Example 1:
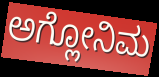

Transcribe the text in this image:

ಅಗ್ಲೋನಿಮ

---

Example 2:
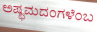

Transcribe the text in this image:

ಅಷ್ಟಮದಂಗಳೆಂಬ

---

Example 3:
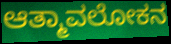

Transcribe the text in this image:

ಆತ್ಮಾವಲೋಕನ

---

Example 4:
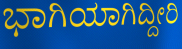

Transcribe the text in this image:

ಭಾಗಿಯಾಗಿದ್ದೀರಿ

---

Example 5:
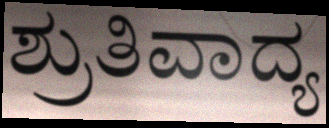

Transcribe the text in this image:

ಶ್ರುತಿವಾದ್ಯ